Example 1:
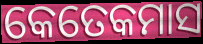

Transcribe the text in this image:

କେତେକମାସ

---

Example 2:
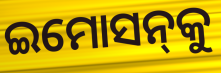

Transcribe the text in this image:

ଇମୋସନ୍‌କୁ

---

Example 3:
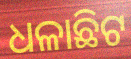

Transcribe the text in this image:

ଧଳାଛିଟ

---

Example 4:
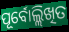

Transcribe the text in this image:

ପୂର୍ବୋଲ୍ଲିଖିତ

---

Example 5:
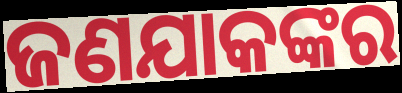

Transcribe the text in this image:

ଜଣଯାକଙ୍କର